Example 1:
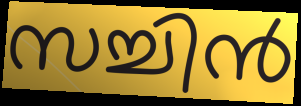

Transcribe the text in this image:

സച്ചിൻ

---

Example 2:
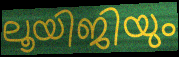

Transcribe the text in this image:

ലൂയിജിയും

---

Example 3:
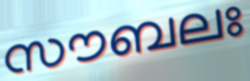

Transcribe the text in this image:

സൗബലഃ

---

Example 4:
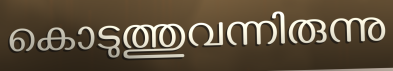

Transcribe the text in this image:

കൊടുത്തുവന്നിരുന്നു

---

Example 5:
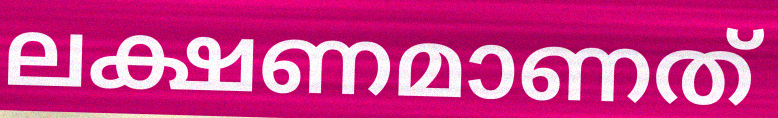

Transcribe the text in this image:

ലക്ഷണമാണത്